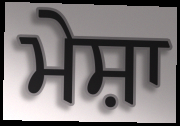
ਮੇਸ਼ਾ